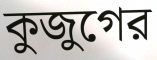
কুজুগের